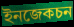
ইনজেকচন